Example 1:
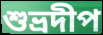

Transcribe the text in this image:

শুভ্রদীপ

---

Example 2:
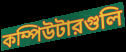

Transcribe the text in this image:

কম্পিউটারগুলি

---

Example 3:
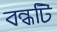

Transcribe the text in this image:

বন্ধটি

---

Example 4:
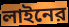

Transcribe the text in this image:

লাইনের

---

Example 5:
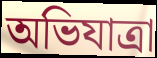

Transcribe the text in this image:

অভিযাত্রা